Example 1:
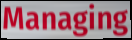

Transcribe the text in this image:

Managing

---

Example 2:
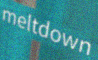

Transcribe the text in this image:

meltdown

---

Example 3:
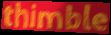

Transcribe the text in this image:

thimble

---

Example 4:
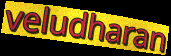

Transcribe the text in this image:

veludharan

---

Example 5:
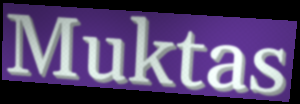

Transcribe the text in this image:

Muktas